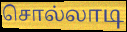
சொல்லாடி